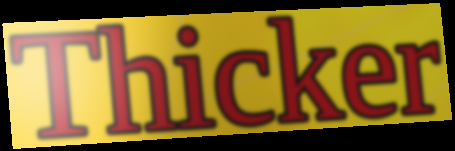
Thicker